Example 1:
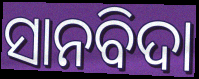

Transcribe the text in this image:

ସାନବିଦା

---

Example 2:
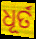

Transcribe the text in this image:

ଧୂର୍ତ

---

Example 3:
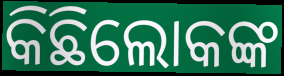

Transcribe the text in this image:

କିଛିଲୋକଙ୍କ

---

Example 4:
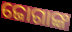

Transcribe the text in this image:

ଜୋଗାଙ୍କ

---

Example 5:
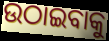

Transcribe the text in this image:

ଉଠାଇବାକୁ